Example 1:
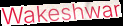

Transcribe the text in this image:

Wakeshwar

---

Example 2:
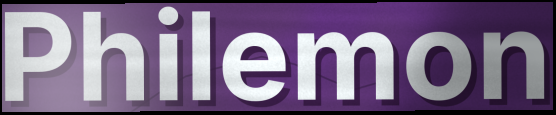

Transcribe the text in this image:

Philemon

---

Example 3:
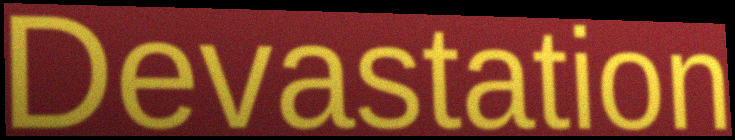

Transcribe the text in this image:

Devastation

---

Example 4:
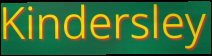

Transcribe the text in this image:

Kindersley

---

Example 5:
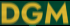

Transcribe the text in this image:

DGM